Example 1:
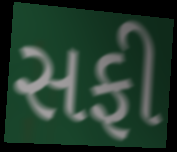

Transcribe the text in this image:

સફી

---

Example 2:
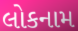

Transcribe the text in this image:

લોકનામ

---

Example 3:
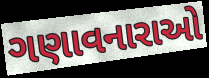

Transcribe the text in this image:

ગણાવનારાઓ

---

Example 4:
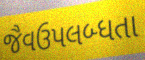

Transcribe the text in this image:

જૈવઉપલબ્ધતા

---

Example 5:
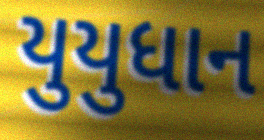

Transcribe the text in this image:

યુયુધાન